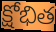
క్షోభిత